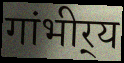
गांभीर्य